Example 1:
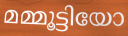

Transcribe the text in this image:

മമ്മൂട്ടിയോ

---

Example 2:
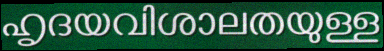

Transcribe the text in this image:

ഹൃദയവിശാലതയുള്ള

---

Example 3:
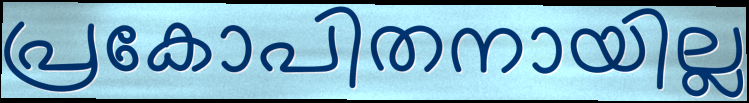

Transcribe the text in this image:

പ്രകോപിതനായില്ല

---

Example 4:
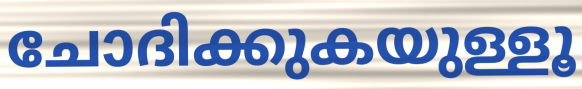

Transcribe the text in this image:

ചോദിക്കുകയുള്ളൂ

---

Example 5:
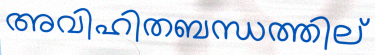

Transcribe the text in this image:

അവിഹിതബന്ധത്തില്